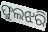
ଫୁଲଝରି